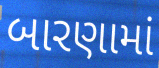
બારણામાં